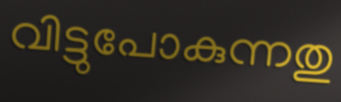
വിട്ടുപോകുന്നതു